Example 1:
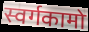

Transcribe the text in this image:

स्वर्गकामो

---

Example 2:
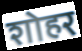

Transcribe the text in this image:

शोहर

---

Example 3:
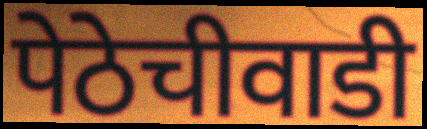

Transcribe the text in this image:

पेठेचीवाडी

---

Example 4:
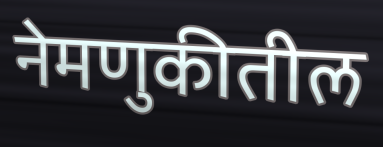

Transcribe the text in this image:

नेमणुकीतील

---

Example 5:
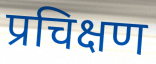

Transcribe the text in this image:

प्रचिक्षण